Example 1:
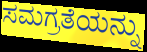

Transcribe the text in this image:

ಸಮಗ್ರತೆಯನ್ನು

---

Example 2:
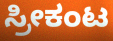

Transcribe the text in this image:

ಸ್ರೀಕಂಟ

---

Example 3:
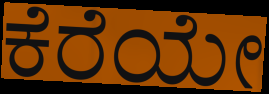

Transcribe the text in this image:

ಕೆರೆಯೇ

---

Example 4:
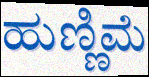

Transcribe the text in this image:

ಹುಣ್ಣಿಮೆ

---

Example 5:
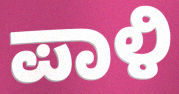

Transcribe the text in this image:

ಪಾಳಿ